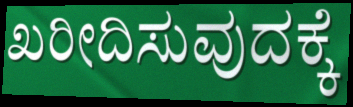
ಖರೀದಿಸುವುದಕ್ಕೆ